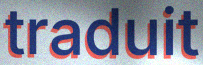
traduit